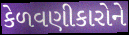
કેળવણીકારોને